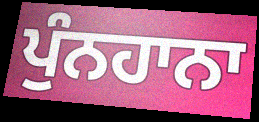
ਪੁੰਨਹਾਨਾ